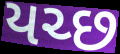
યચ્છ